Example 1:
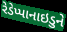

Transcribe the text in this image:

રેડેપ્પાનાઇડુને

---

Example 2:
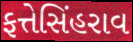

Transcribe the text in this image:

ફત્તેસિંહરાવ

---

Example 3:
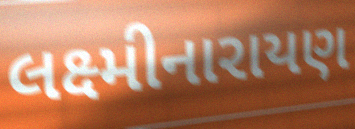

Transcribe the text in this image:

લક્ષ્મીનારાયણ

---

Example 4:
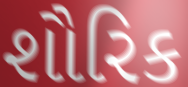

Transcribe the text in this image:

શૌરિક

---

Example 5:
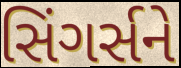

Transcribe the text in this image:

સિંગર્સને